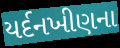
યર્દનખીણના